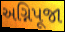
અગ્નિપૂજા